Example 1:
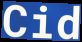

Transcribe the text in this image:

Cid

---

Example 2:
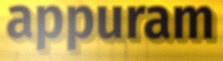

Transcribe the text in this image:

appuram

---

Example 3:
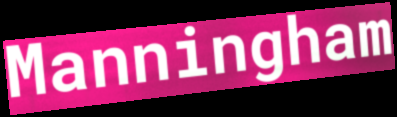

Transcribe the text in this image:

Manningham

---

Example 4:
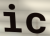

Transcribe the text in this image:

ic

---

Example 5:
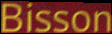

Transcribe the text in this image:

Bisson